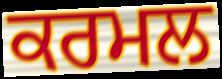
ਕਰਮਲ